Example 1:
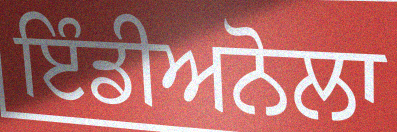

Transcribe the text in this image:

ਇੰਡੀਅਨੋਲਾ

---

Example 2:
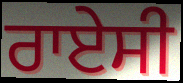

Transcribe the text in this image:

ਰਾਏਸੀ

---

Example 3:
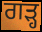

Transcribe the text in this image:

ਗੜ੍ਹ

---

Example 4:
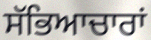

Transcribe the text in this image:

ਸੱਭਿਆਚਾਰਾਂ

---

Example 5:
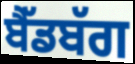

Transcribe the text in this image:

ਬੈੱਡਬੱਗ